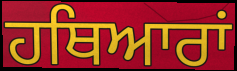
ਹਥਿਆਰਾਂ